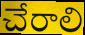
చేరాలి